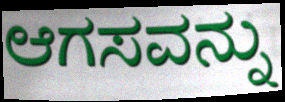
ಆಗಸವನ್ನು